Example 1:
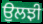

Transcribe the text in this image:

ਉਲਝੀ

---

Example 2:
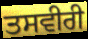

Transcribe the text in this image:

ਤਸਵੀਰੀ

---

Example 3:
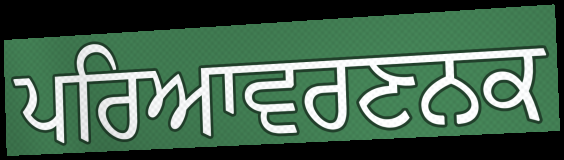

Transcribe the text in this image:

ਪਰਿਆਵਰਣਨਕ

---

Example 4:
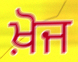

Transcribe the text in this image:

ਖ਼ੋਜ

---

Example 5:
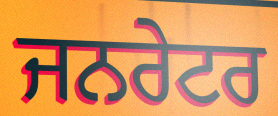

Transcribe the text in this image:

ਜਨਰੇਟਰ